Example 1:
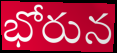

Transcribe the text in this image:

భోరున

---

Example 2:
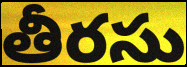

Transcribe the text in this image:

తీరసు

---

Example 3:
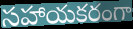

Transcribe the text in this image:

సహాయకరంగా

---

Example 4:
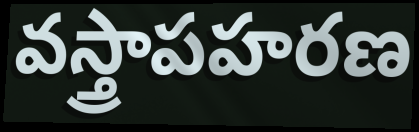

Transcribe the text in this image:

వస్త్రాపహరణ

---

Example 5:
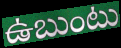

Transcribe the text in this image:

ఉబుంటు